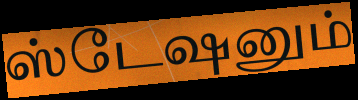
ஸ்டேஷனும்